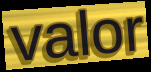
valor